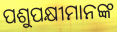
ପଶୁପକ୍ଷୀମାନଙ୍କ